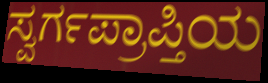
ಸ್ವರ್ಗಪ್ರಾಪ್ತಿಯ